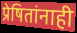
प्रेषितांनाही